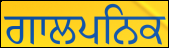
ਗਾਲਪਨਿਕ